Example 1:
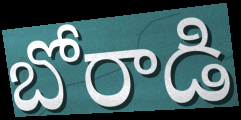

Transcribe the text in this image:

బోరాడి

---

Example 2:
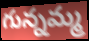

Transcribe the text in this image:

గున్నమ్మ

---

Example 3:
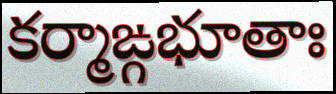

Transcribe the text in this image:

కర్మాఙ్గభూతాః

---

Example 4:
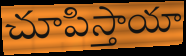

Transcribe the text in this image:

చూపిస్తాయా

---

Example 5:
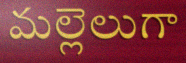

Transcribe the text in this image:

మల్లెలుగా